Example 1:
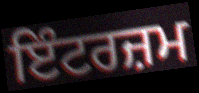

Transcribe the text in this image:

ਇੰਟਰਜ਼ਮ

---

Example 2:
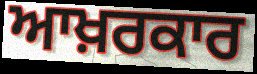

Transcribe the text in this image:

ਆਖ਼ਰਕਾਰ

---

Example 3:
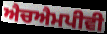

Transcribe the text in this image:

ਐਚਐਮਪੀਵੀ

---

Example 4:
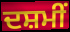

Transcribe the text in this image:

ਦਸ਼ਮੀਂ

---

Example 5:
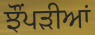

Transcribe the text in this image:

ਝੌਂਪੜੀਆਂ